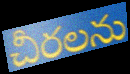
చీరలను